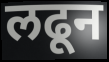
लढून